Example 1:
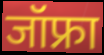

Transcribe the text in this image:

जॉफ्रा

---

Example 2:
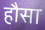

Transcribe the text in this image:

हौसा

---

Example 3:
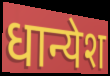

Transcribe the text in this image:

धान्येश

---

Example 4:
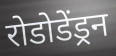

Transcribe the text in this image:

रोडोडेंड्रन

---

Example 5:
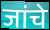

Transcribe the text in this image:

जांचे